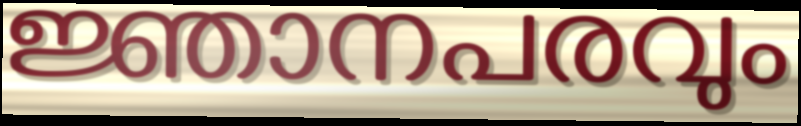
ജ്ഞാനപരവും